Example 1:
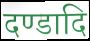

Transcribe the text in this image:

दण्डादि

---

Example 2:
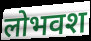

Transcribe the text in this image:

लोभवश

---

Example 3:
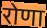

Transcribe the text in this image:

रोणा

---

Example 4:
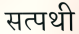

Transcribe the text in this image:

सत्पथी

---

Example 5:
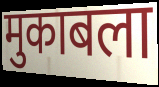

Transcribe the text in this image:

मुकाबला